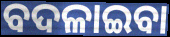
ବଦଳାଇବା